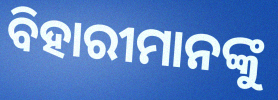
ବିହାରୀମାନଙ୍କୁ